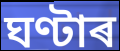
ঘণ্টাৰ